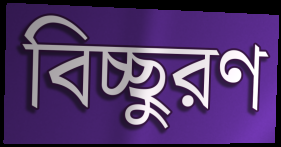
বিচ্ছুরণ